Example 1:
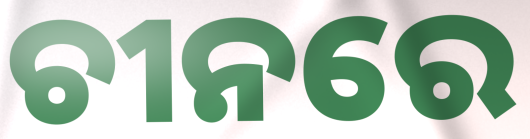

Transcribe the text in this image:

ଚୀନରେ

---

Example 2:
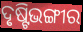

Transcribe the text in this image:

ଦୃଷ୍ଟିଭଙ୍ଗୀର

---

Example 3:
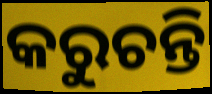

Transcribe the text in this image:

କରୁଚନ୍ତି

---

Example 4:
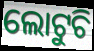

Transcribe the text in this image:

ଲୋଟୁଚି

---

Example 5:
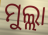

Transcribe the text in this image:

ମୁଲ୍ଲା